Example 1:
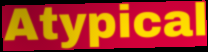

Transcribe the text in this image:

Atypical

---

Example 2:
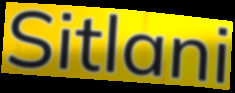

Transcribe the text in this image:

Sitlani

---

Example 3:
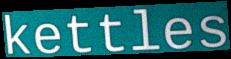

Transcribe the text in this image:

kettles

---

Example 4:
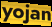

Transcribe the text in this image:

yojan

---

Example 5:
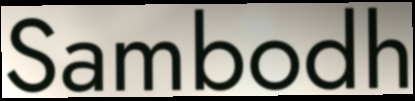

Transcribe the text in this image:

Sambodh